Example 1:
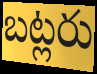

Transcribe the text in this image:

బట్లరు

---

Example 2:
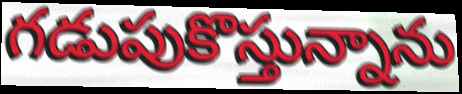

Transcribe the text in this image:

గడుపుకొస్తున్నాను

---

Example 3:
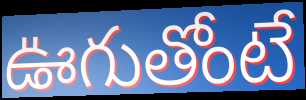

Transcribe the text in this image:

ఊగుతోంటే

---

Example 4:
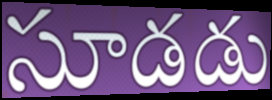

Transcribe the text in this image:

సూడడు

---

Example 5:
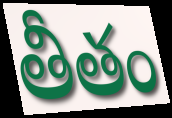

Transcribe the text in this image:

తీతం